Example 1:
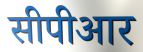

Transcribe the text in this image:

सीपीआर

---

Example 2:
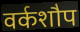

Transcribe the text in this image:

वर्कशौप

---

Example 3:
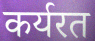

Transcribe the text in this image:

कर्यरत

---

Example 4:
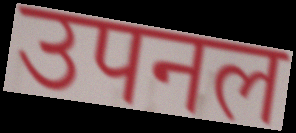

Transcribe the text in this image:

उपनल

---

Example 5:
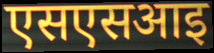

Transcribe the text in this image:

एसएसआइ